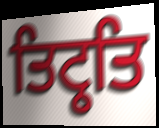
ਤਿਟ੍ਠਤਿ